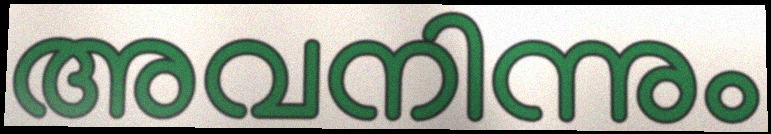
അവനിന്നും